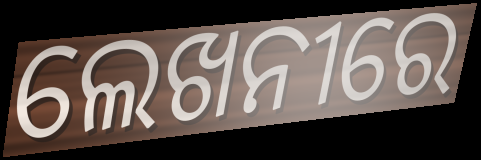
ଲେଖନୀରେ